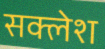
सक्लेश